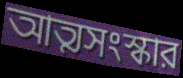
আত্মসংস্কার